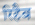
रिहैब